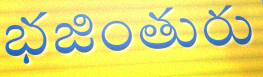
భజింతురు